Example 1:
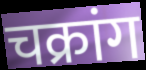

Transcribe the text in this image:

चक्रांग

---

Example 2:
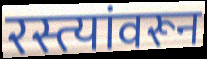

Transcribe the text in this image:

रस्त्यांवरून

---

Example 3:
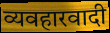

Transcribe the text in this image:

व्यवहारवादी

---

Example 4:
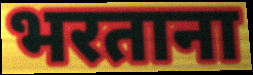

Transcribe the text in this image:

भरताना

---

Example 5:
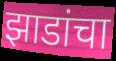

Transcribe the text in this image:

झाडांचा